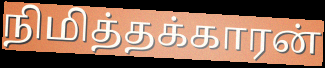
நிமித்தக்காரன்